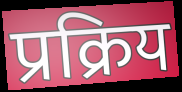
प्रक्रिय